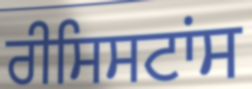
ਰੀਸਿਸਟਾਂਸ